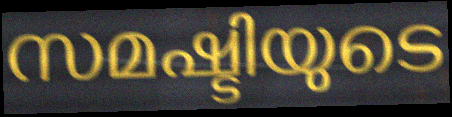
സമഷ്ടിയുടെ